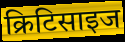
क्रिटिसाइज